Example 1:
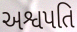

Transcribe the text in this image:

અશ્વપતિ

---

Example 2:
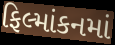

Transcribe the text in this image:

ફિલ્માંકનમાં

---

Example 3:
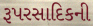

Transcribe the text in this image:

રૂપરસાદિકની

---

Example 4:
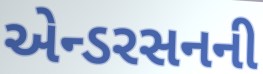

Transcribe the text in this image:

એન્ડરસનની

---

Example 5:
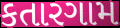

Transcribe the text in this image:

કતારગામ